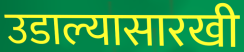
उडाल्यासारखी